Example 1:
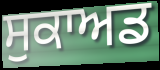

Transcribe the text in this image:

ਸੁਕਾਅਡ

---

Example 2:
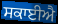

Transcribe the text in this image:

ਸਕਾਈਐ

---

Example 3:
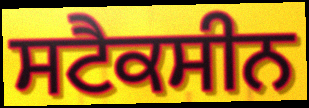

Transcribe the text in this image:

ਸਟੈਕਸੀਨ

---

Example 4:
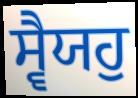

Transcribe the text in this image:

ਸ੍ਵੈਯਹੁ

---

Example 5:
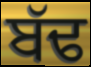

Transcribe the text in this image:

ਬੱਢ